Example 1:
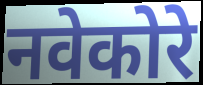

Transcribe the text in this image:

नवेकोरे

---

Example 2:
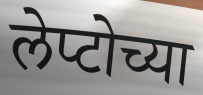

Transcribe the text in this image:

लेप्टोच्या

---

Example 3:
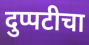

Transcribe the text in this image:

दुप्पटीचा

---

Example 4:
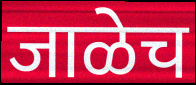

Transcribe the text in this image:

जाळेच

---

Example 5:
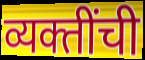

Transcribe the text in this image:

व्‍यक्‍तींची